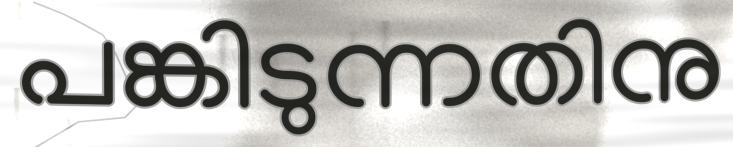
പങ്കിടുന്നതിനു